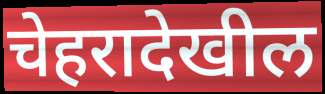
चेहरादेखील